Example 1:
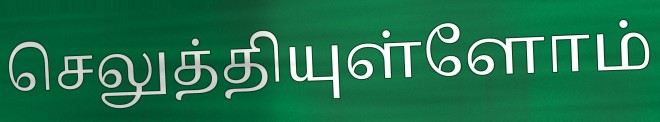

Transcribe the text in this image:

செலுத்தியுள்ளோம்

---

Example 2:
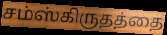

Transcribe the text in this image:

சம்ஸ்கிருதத்தை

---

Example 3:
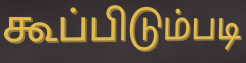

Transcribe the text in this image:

கூப்பிடும்படி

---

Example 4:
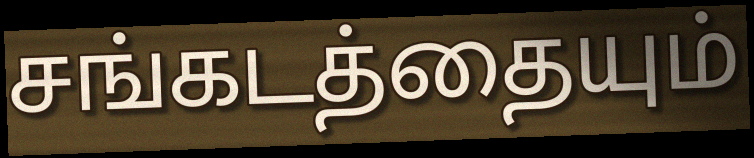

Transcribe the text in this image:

சங்கடத்தையும்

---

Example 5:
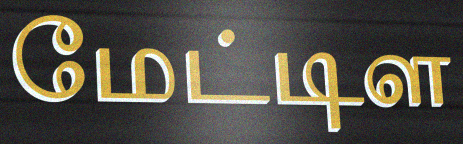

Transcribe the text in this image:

மேட்டிள